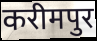
करीमपुर